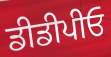
ਡੀਡੀਪੀਓ